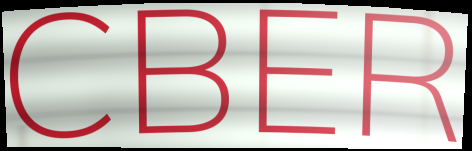
CBER